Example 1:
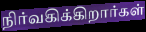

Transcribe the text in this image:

நிர்வகிக்கிறார்கள்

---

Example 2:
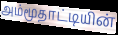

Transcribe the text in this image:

அம்மூதாட்டியின்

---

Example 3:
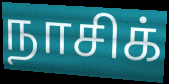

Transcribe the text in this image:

நாசிக்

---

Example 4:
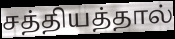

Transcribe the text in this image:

சத்தியத்தால்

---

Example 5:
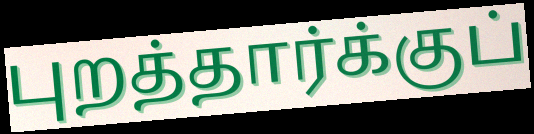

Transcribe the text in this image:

புறத்தார்க்குப்